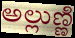
అల్లుణ్ణి